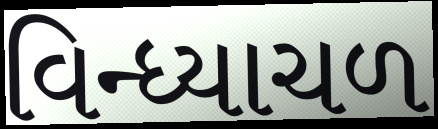
વિન્ધ્યાચળ